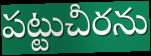
పట్టుచీరను